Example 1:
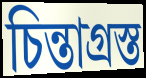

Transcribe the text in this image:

চিন্তাগ্রস্ত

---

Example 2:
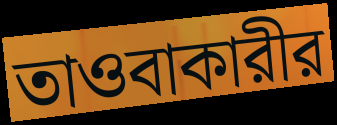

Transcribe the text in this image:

তাওবাকারীর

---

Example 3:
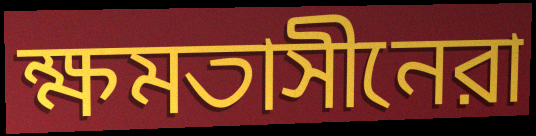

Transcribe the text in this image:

ক্ষমতাসীনেরা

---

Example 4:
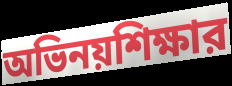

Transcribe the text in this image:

অভিনয়শিক্ষার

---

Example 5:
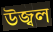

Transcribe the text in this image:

উজ্বল